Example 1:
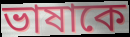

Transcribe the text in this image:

ভাষাকে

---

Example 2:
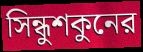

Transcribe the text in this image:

সিন্ধুশকুনের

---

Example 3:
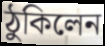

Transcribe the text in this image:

ঠুকিলেন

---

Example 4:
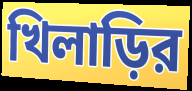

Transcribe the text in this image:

খিলাড়ির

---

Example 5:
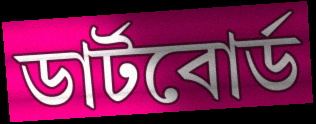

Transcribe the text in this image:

ডার্টবোর্ড